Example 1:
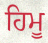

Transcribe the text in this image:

ਹਿਮੂ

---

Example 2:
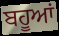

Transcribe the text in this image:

ਬਹੂਆਂ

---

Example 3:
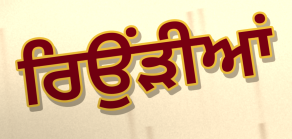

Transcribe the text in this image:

ਰਿਉਂੜੀਆਂ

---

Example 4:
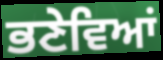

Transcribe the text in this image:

ਭਣੇਵਿਆਂ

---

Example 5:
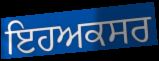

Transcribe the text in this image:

ਇਹਅਕਸਰ